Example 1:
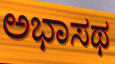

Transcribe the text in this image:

ಅಭಾಸಥ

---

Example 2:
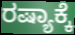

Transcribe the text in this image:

ರಷ್ಯಾಕ್ಕೆ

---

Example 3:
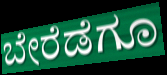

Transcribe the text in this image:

ಬೇರೆಡೆಗೂ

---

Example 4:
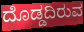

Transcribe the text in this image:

ದೊಡ್ಡದಿರುವ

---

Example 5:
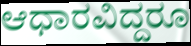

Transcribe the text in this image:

ಆಧಾರವಿದ್ದರೂ